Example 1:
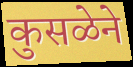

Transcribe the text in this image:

कुसळेने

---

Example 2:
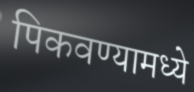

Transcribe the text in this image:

पिकवण्यामध्ये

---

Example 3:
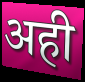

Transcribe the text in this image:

अही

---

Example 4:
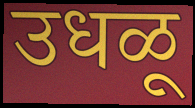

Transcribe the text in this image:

उधळू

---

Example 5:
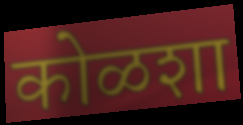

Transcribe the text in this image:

कोळशा